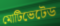
মোটিভেটেড